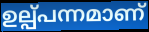
ഉല്പ്പന്നമാണ്